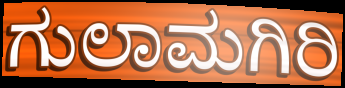
ಗುಲಾಮಗಿರಿ